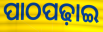
ପାଠପଢ଼ାଇ